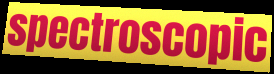
spectroscopic